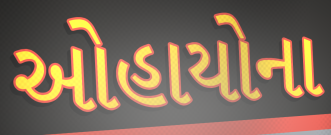
ઓહાયોના